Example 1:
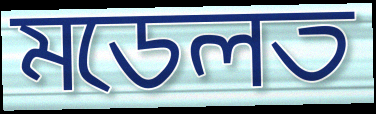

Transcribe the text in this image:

মডেলত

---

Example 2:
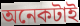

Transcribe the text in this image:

অনেকটাই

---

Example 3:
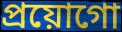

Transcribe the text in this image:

প্ৰয়োগো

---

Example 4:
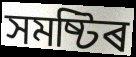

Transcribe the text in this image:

সমষ্টিৰ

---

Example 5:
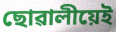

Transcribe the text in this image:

ছোৱালীয়েই